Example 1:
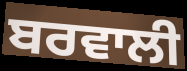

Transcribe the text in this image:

ਬਰਵਾਲੀ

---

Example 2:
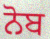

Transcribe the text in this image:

ਨੋਬ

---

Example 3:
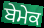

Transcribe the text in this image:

ਬੇਮੇਕ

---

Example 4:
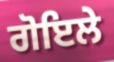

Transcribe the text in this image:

ਗੋਇਲੇ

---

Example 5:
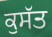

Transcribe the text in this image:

ਕੁਸੱਤ